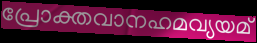
പ്രോക്തവാനഹമവ്യയമ്